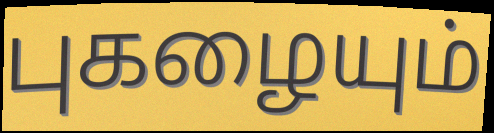
புகழையும்